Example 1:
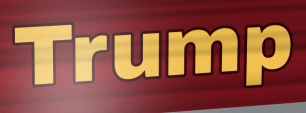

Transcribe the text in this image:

Trump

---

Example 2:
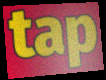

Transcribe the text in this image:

tap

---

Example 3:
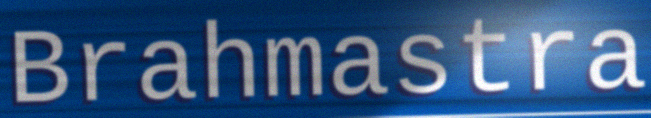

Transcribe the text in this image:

Brahmastra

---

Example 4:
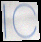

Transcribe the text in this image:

IC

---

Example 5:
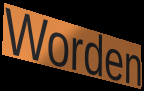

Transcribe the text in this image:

Worden